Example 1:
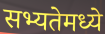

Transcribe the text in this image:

सभ्यतेमध्ये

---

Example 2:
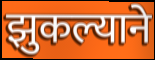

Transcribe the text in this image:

झुकल्याने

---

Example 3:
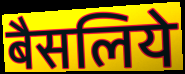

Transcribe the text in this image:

बैसलिये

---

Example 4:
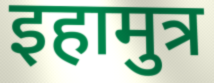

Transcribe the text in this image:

इहामुत्र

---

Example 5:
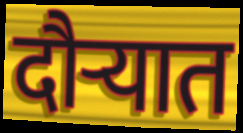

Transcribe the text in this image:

दौर्‍यात